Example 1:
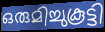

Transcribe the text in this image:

ഒരുമിച്ചുകൂട്ടി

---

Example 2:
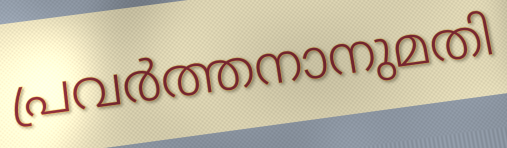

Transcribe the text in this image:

പ്രവർത്തനാനുമതി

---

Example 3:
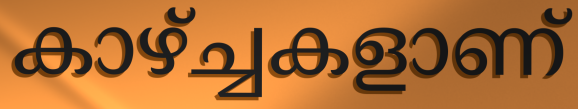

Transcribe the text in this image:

കാഴ്ച്ചകളാണ്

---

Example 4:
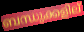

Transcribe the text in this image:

ബന്ധുക്കളില്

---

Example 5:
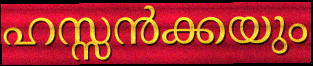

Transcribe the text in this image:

ഹസ്സൻക്കയും